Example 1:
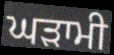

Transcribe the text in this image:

ਘੜਾਮੀ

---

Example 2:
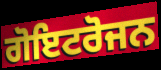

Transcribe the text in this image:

ਗੋਇਟਰੋਜਨ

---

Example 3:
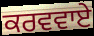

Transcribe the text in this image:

ਕਰਵਵਾਏ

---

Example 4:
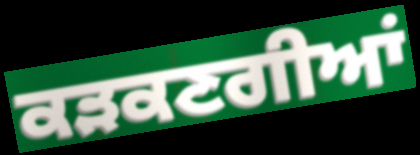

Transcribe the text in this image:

ਕੜਕਣਗੀਆਂ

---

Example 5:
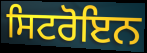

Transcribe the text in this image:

ਸਿਟਰੋਇਨ